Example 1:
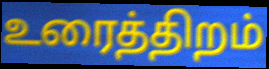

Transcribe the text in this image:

உரைத்திறம்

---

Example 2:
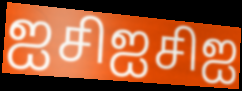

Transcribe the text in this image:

ஐசிஐசிஐ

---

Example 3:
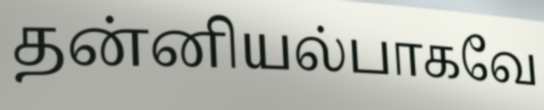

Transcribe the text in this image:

தன்னியல்பாகவே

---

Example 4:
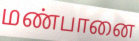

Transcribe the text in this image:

மண்பானை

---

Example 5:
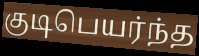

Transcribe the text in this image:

குடிபெயர்ந்த